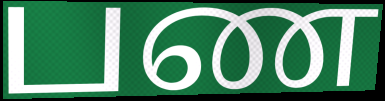
பண